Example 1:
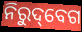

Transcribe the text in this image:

ନିରୁଦ୍‌ବେଗ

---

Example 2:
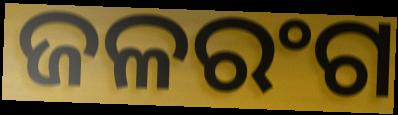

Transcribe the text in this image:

ଜଳରଂଗ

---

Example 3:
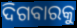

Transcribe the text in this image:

ଦିଗବାରକୁ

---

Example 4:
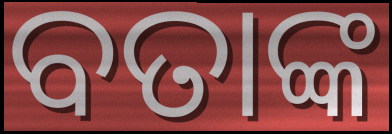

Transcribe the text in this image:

ବତାଙ୍କ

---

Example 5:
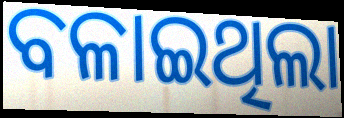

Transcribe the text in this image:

ବଳାଇଥିଲା